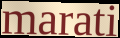
marati